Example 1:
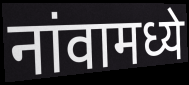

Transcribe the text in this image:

नांवामध्ये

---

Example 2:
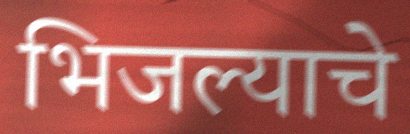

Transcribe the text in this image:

भिजल्याचे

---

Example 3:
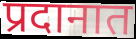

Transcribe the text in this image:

प्रदानात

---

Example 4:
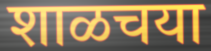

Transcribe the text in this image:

शाळचया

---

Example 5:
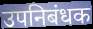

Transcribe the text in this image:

उपनिबंधक